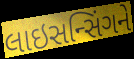
લાઇસન્સિંગને